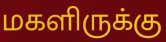
மகளிருக்கு